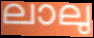
ലാലു